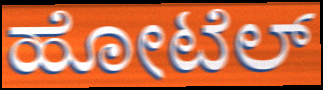
ಹೋಟೆಲ್